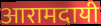
आरामदायी